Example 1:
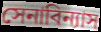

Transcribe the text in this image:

সেনাবিন্যাস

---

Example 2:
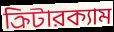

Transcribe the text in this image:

ক্রিটারক্যাম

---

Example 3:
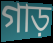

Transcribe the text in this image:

গাড়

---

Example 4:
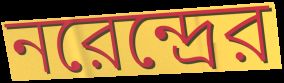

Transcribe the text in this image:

নরেন্দ্রের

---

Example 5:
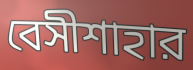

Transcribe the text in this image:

বেসীশাহার